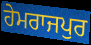
ਹੇਮਰਾਜਪੁਰ